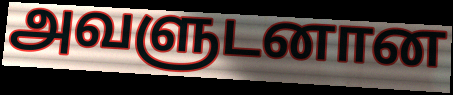
அவளுடனான